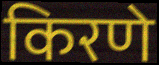
किरणे